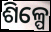
ଶିଳ୍ପେ